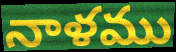
నాళము